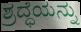
ಶ್ರದ್ಧೆಯನ್ನು